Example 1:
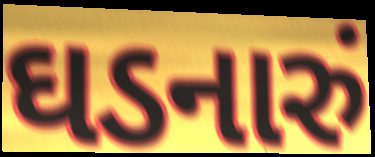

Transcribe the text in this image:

ઘડનારું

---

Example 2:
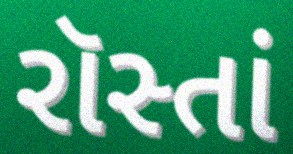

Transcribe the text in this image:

રૉસ્તાં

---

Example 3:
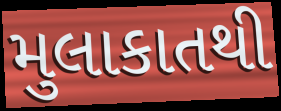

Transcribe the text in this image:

મુલાકાતથી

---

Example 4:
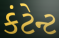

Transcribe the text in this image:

કંટેન્ટ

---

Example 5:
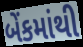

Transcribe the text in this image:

બેંકમાંથી